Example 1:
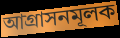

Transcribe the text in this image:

আগ্রাসনমূলক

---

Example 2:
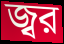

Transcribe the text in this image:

জ্বর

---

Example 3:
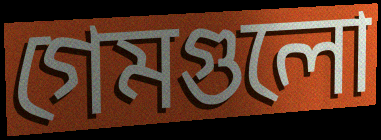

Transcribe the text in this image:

গেমগুলো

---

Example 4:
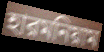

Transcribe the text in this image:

হারমনিয়াম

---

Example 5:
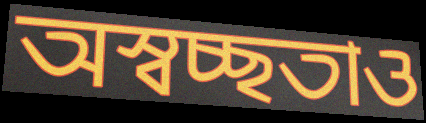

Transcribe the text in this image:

অস্বচ্ছতাও